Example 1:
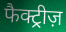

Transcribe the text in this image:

फैक्ट्रीज़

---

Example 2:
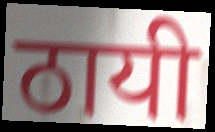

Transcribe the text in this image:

ठायी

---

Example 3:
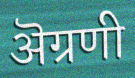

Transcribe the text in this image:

ऄग्रणी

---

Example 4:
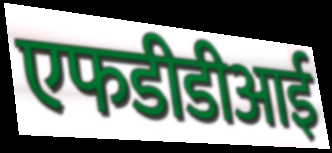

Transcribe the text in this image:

एफडीडीआई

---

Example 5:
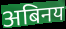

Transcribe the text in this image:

अबिनय